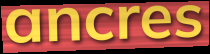
ancres